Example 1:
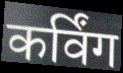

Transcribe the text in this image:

कर्विंग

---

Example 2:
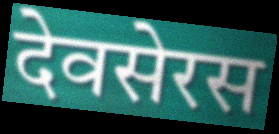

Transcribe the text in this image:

देवसेरस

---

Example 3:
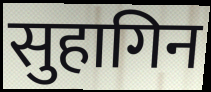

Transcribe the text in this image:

सुहागिन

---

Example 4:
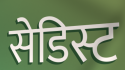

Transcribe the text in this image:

सेडिस्ट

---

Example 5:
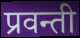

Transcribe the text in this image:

प्रवन्ती